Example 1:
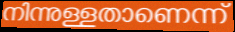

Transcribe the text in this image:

നിന്നുള്ളതാണെന്ന്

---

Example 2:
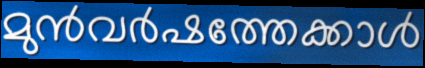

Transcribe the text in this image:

മുൻവർഷത്തേക്കാൾ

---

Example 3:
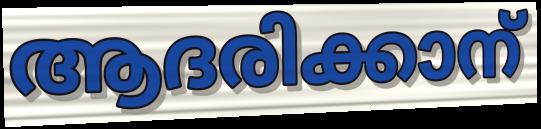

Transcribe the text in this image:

ആദരിക്കാന്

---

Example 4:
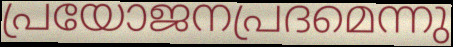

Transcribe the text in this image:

പ്രയോജനപ്രദമെന്നു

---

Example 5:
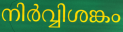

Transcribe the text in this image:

നിർവ്വിശങ്കം